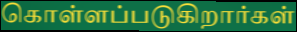
கொள்ளப்படுகிறார்கள்